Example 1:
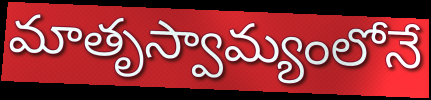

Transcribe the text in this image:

మాతృస్వామ్యంలోనే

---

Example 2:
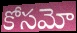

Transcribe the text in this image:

కోసమో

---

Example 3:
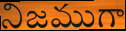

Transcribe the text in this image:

నిజముగా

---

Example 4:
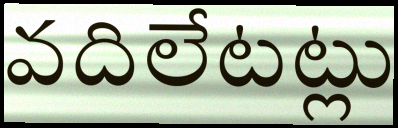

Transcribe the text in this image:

వదిలేటట్లు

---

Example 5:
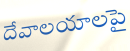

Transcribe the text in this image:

దేవాలయాలపై